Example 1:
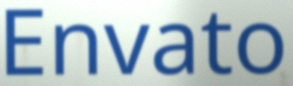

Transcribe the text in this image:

Envato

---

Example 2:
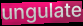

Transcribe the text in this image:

ungulate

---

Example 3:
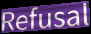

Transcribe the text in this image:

Refusal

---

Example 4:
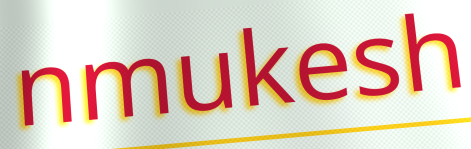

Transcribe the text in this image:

nmukesh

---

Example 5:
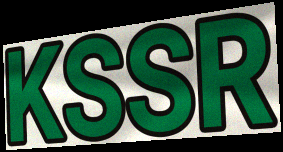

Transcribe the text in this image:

KSSR